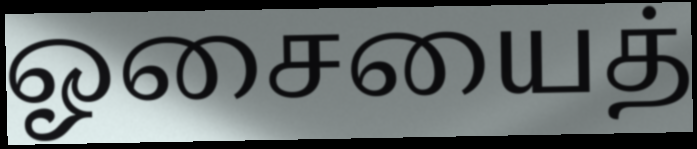
ஓசையைத்